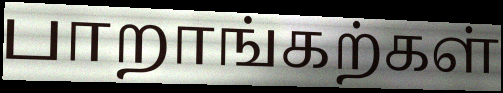
பாறாங்கற்கள்